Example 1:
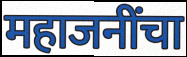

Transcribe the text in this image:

महाजनींचा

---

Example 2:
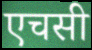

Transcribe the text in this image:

एचसी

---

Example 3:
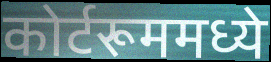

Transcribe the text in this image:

कोर्टरूममध्ये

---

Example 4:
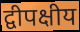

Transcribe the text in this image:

द्वीपक्षीय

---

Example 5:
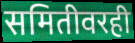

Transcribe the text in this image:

समितीवरही